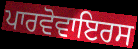
ਪਾਰਵੋਵਾਇਰਸ